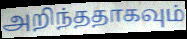
அறிந்ததாகவும்